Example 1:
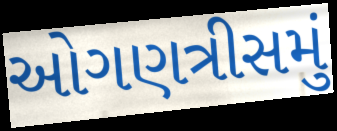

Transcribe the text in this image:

ઓગણત્રીસમું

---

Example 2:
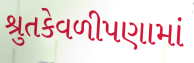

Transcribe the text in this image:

શ્રુતકેવળીપણામાં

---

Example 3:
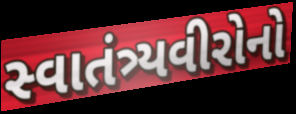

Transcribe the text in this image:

સ્વાતંત્ર્યવીરોનો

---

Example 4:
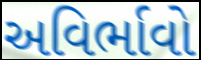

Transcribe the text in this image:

અવિર્ભાવો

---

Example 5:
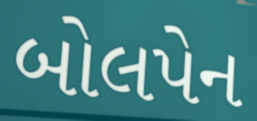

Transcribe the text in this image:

બોલપેન